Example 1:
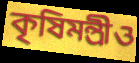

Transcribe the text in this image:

কৃষিমন্ত্রীও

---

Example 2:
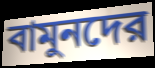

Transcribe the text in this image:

বামুনদের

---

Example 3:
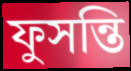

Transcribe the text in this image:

ফুসন্তি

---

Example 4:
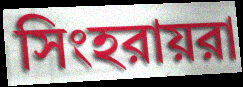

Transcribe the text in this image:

সিংহরায়রা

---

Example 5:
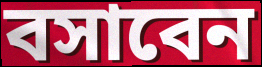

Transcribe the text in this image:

বসাবেন